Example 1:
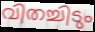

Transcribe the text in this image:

വിതച്ചിടും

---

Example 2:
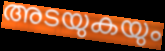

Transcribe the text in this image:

അടയുകയും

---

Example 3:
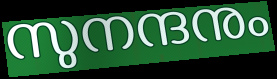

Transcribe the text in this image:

സുനന്ദനും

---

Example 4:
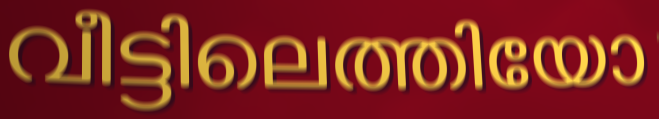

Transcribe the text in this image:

വീട്ടിലെത്തിയോ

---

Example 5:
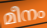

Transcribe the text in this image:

മീനം